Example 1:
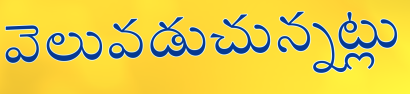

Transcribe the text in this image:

వెలువడుచున్నట్లు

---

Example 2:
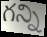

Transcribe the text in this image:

గన్ని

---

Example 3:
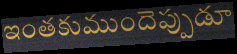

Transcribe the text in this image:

ఇంతకుముందెప్పుడూ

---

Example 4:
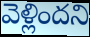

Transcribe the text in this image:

వెళ్లిందని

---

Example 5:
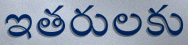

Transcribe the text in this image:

ఇతరులకు